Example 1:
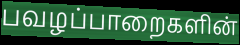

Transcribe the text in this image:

பவழப்பாறைகளின்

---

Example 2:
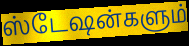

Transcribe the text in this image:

ஸ்டேஷன்களும்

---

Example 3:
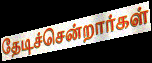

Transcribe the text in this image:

தேடிச்சென்றார்கள்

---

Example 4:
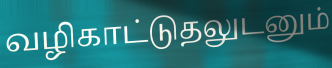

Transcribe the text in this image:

வழிகாட்டுதலுடனும்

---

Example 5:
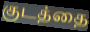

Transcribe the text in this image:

குடத்தை